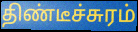
திண்டீச்சுரம்